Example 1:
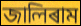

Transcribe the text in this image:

জালিৰাম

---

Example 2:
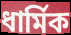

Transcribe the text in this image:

ধাৰ্মিক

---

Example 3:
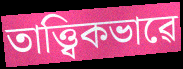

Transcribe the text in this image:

তাত্ত্বিকভাৱে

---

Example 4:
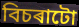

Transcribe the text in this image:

বিচৰাটো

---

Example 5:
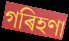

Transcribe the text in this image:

গৰিহণা